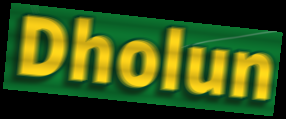
Dholun